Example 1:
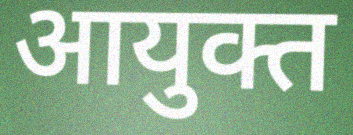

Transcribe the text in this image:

आयुक्त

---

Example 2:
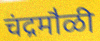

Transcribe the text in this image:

चंद्रमौळी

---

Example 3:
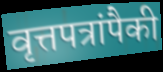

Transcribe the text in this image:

वृत्तपत्रांपैकी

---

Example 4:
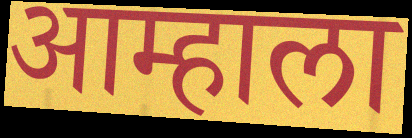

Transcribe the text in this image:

आम्हाला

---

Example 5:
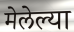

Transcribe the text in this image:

मेलेल्या